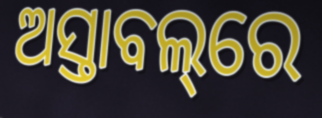
ଅସ୍ତାବଲ୍‌ରେ